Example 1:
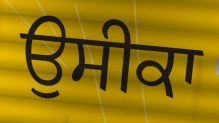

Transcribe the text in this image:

ਉਸੀਕਾ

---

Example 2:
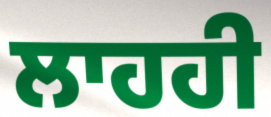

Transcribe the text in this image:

ਲਾਹਹੀ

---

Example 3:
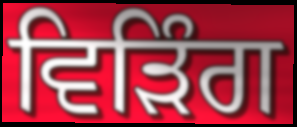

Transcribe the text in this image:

ਵਿੜਿੰਗ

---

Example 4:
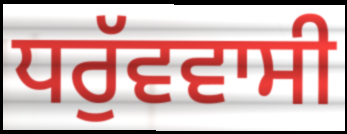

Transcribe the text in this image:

ਧਰੁੱਵਵਾਸੀ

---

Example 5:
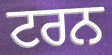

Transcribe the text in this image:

ਟਰਨ